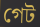
গেট